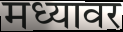
मध्यावर